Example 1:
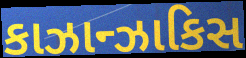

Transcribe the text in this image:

કાઝાન્ઝાકિસ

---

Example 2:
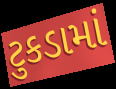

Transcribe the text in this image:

ટુકડામાં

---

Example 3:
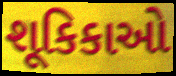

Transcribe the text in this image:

શૂકિકાઓ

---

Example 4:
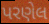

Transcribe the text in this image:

પરણેલ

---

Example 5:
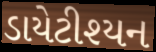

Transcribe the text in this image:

ડાયેટીશ્યન